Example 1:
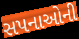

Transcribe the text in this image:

સપનાઓની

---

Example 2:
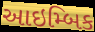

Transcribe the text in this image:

આઇમ્બિક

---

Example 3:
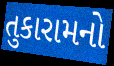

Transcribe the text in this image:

તુકારામનો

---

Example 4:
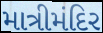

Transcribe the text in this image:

માત્રીમંદિર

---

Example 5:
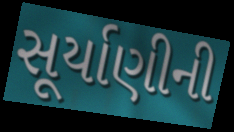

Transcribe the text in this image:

સૂર્યાણીની